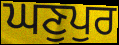
ਘਣੁਪੁਰ